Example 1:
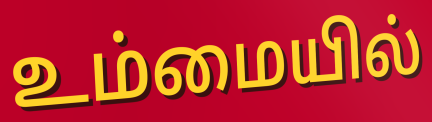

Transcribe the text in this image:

உம்மையில்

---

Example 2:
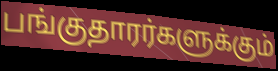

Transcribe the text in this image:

பங்குதாரர்களுக்கும்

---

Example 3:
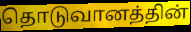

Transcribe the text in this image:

தொடுவானத்தின்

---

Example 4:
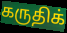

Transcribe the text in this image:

கருதிக்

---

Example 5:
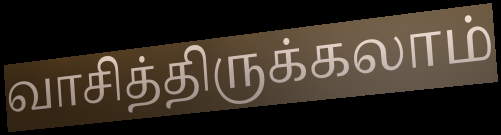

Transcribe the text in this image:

வாசித்திருக்கலாம்